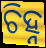
ଚିହ୍ନ